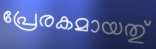
പ്രേരകമായതു്